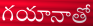
గయానాతో